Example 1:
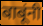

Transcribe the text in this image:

बाबूंनी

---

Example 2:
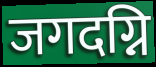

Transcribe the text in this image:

जगदग्नि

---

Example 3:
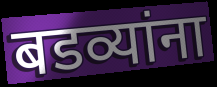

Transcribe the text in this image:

बडव्यांना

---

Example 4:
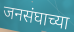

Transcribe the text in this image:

जनसंघाच्या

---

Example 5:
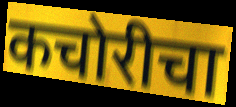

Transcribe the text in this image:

कचोरीचा